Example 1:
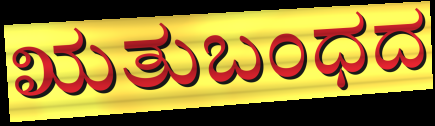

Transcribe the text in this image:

ಋತುಬಂಧದ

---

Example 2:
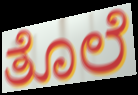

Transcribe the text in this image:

ತೊಲೆ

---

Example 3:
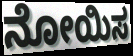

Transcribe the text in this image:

ನೋಯಿಸ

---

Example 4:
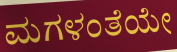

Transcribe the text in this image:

ಮಗಳಂತೆಯೇ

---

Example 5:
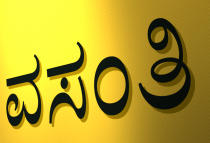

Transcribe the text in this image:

ವಸಂತಿ